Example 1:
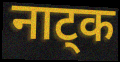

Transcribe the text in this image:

नाट्क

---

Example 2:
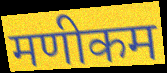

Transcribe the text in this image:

मणीकम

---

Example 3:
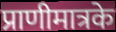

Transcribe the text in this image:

प्राणीमात्रके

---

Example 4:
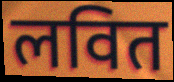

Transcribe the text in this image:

लवित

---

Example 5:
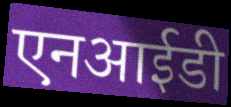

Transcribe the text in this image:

एनआईडी